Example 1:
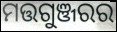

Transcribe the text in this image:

ମତ୍ତଗୁଞ୍ଜରର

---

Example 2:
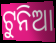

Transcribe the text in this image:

ଟୁନିଆ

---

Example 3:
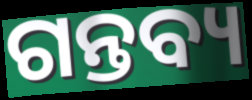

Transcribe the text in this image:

ଗନ୍ତବ୍ୟ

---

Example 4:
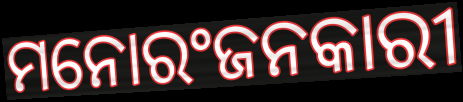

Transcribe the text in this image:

ମନୋରଂଜନକାରୀ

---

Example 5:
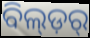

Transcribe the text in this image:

ବିଲ୍ଡ଼ର୍